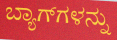
ಬ್ಯಾಗ್‍ಗಳನ್ನು